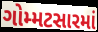
ગોમ્મટસારમાં